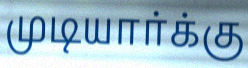
முடியார்க்கு